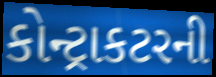
કોન્ટ્રાકટરની